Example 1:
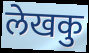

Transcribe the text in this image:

लेखकु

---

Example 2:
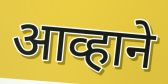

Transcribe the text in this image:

आव्हाने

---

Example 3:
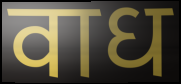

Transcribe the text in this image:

वाध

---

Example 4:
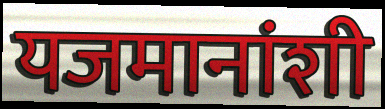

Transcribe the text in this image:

यजमानांशी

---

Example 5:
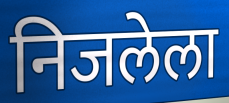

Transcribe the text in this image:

निजलेला